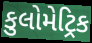
કુલોમેટ્રિક